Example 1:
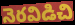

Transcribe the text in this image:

నెరవిడిచి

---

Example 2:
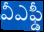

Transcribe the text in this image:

వీఎఫ్డీ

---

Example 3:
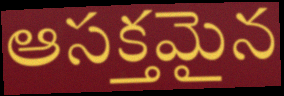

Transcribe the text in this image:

ఆసక్తమైన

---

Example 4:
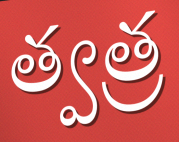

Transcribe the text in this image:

త్వత్ర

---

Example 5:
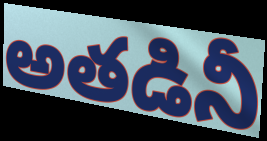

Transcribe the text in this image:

అతడినీ